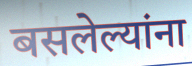
बसलेल्यांना